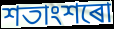
শতাংশৰো